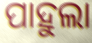
ପାହୁଲା